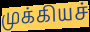
முக்கியச்